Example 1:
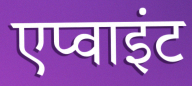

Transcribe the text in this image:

एप्वाइंट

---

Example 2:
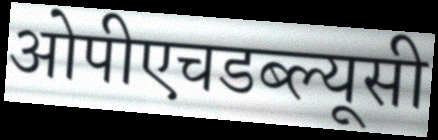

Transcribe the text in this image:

ओपीएचडब्ल्यूसी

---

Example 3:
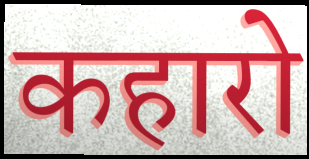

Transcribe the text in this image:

कहारो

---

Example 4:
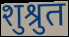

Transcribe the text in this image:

शुश्रुत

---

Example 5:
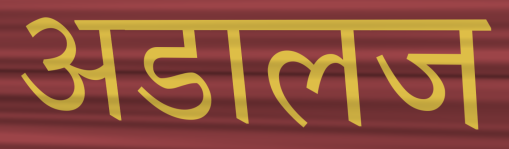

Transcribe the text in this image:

अडालज